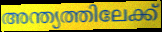
അന്ത്യത്തിലേക്ക്